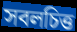
সবলচিত্ত